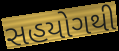
સહયોગથી